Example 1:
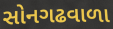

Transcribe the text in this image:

સોનગઢવાળા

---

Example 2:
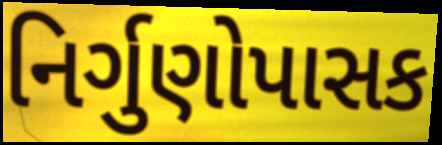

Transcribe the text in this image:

નિર્ગુણોપાસક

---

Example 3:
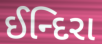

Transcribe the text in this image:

ઈન્દિરા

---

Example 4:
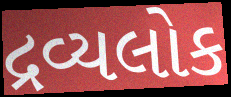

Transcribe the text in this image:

દ્રવ્યલોક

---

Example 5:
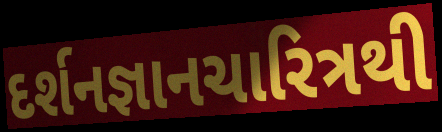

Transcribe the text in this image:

દર્શનજ્ઞાનચારિત્રથી